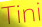
Tini